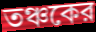
তঞ্চকের